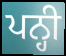
ਪਨ੍ਹੀ